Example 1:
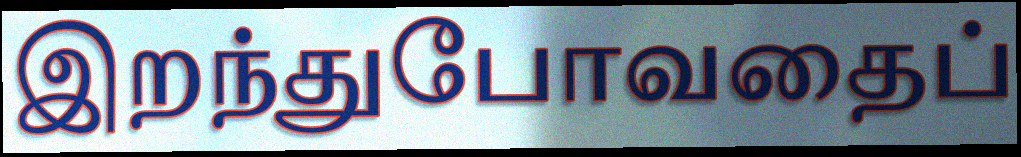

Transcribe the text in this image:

இறந்துபோவதைப்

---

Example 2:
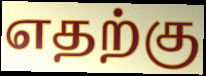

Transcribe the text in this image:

எதற்கு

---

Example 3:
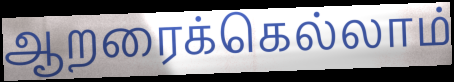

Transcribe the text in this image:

ஆறரைக்கெல்லாம்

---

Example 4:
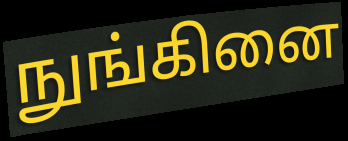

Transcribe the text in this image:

நுங்கினை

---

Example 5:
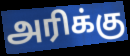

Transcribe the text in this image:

அரிக்கு